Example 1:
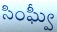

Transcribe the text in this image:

సింఘ్వీ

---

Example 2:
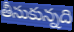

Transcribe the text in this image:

తీసుకున్నది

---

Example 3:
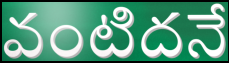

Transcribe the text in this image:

వంటిదనే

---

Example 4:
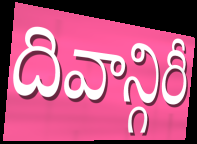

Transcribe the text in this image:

దివాన్గిరీ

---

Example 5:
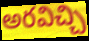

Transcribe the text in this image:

అరవిచ్చి